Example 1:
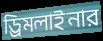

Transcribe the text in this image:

ড্রিমলাইনার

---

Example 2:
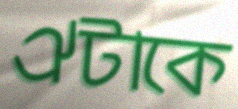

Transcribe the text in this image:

ঐটাকে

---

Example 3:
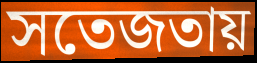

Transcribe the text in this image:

সতেজতায়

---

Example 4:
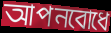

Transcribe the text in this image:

আপনবোধে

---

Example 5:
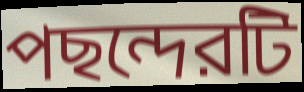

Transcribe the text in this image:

পছন্দেরটি